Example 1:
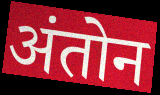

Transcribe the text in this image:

अंतोन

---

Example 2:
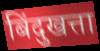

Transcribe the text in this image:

बिंदुखत्ता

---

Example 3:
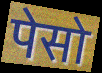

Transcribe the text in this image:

पेसो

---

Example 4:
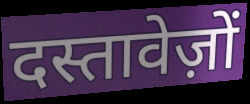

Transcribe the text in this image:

दस्तावेज़ों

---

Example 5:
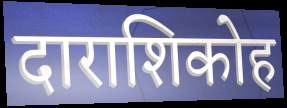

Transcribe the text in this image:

दाराशिकोह